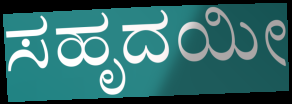
ಸಹೃದಯೀ